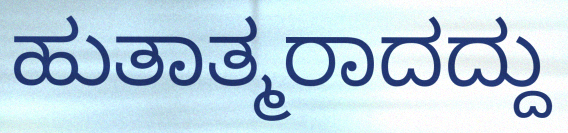
ಹುತಾತ್ಮರಾದದ್ದು